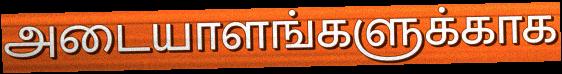
அடையாளங்களுக்காக